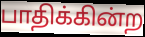
பாதிக்கின்ற